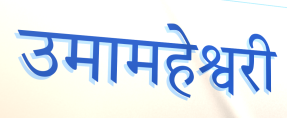
उमामहेश्वरी